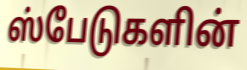
ஸ்பேடுகளின்